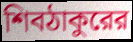
শিবঠাকুরের